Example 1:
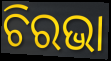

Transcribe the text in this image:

ଚିରଭା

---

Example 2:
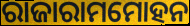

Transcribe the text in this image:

ରାଜାରାମମୋହନ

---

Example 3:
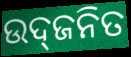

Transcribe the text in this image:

ଉଦ୍‌ଜନିତ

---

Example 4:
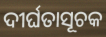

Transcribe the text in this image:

ଦୀର୍ଘତାସୂଚକ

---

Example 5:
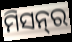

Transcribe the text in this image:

ମିସନ୍‌ର